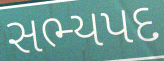
સભ્યપદ